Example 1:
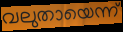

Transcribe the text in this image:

വലുതായെന്ന്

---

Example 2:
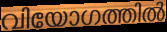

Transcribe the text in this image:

വിയോഗത്തിൽ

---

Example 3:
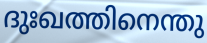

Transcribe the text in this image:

ദുഃഖത്തിനെന്തു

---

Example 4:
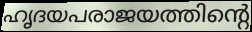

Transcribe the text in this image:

ഹൃദയപരാജയത്തിന്റെ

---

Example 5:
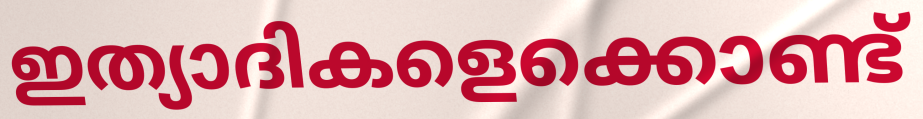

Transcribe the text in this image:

ഇത്യാദികളെക്കൊണ്ട്